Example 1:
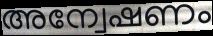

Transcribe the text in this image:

അന്വേഷണം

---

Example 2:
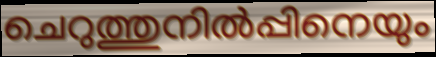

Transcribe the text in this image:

ചെറുത്തുനിൽപ്പിനെയും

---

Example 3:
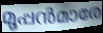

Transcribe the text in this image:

മൂപ്പൻമാരേ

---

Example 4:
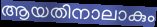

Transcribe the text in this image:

ആയതിനാലാകും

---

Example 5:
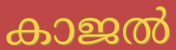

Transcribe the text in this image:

കാജൽ